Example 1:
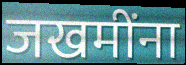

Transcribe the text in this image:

जखमींना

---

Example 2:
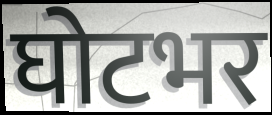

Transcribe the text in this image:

घोटभर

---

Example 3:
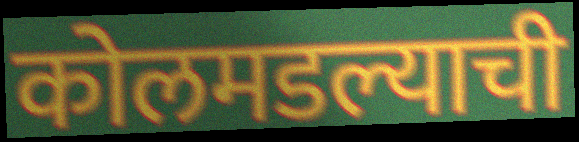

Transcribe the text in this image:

कोलमडल्याची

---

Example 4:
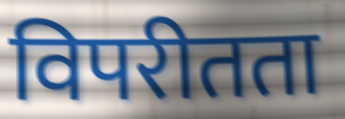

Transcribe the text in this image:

विपरीतता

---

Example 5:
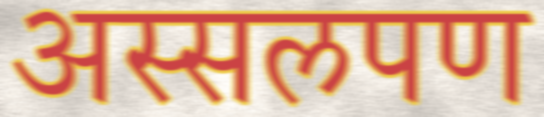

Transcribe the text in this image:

अस्सलपण